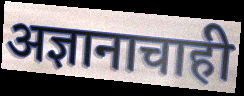
अज्ञानाचाही